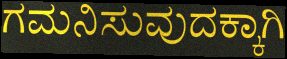
ಗಮನಿಸುವುದಕ್ಕಾಗಿ